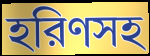
হরিণসহ